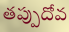
తప్పుదోవ